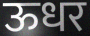
ऊधर